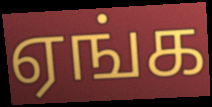
ஏங்க